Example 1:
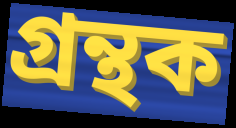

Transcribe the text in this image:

গ্ৰন্থক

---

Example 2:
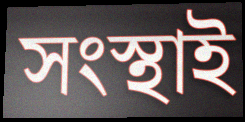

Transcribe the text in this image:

সংস্থাই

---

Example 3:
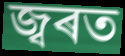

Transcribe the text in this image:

জ্বৰত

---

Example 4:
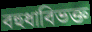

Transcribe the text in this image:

বহুধাবিভক্ত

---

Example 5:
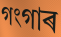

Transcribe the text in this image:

গংগাৰ